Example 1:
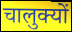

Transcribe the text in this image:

चालुक्यों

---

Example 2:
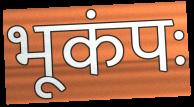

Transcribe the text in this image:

भूकंपः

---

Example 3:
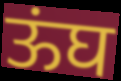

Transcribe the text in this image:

ऊंघ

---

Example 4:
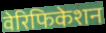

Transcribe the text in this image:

वेरिफिकेशन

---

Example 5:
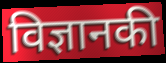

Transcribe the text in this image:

विज्ञानकी